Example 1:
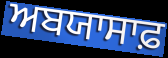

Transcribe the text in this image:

ਅਬਯਾਸਾਫ਼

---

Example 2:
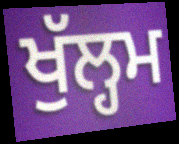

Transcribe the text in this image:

ਖੁੱਲ੍ਹਮ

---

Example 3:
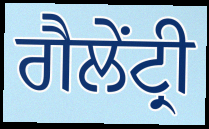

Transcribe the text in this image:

ਗੈਲੇਂਟ੍ਰੀ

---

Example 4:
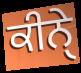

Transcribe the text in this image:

ਕੀਨੇੑ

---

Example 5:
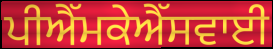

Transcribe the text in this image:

ਪੀਐੱਮਕੇਐੱਸਵਾਈ